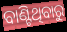
ବାଣ୍ଟିଥିବାରୁ